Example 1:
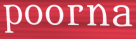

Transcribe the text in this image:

poorna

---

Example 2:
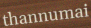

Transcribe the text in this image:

thannumai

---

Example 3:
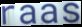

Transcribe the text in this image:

raas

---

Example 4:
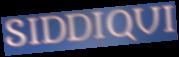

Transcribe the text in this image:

SIDDIQUI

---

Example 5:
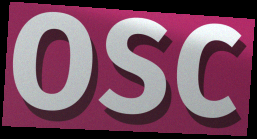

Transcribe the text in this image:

osc